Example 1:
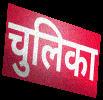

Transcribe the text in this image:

चुलिका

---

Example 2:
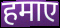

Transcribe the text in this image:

हमाए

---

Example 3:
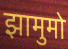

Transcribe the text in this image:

झामुमो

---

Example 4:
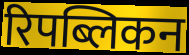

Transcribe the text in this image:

रिपब्लिकन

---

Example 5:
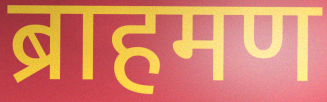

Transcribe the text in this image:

ब्राहमण